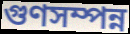
গুণসম্পন্ন